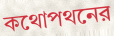
কথোপথনের